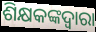
ଶିକ୍ଷକଙ୍କଦ୍ଵାରା